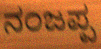
ನಂಜಪ್ಪ